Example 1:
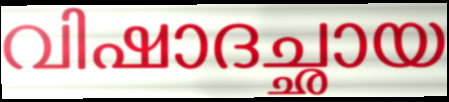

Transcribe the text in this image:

വിഷാദച്ഛായ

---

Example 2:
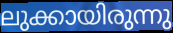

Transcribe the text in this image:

ലുക്കായിരുന്നു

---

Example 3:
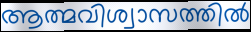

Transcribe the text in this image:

ആത്മവിശ്വാസത്തിൽ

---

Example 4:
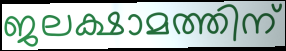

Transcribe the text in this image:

ജലക്ഷാമത്തിന്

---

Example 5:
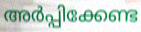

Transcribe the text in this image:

അർപ്പിക്കേണ്ട